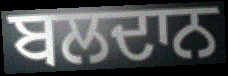
ਬਲਦਾਨ